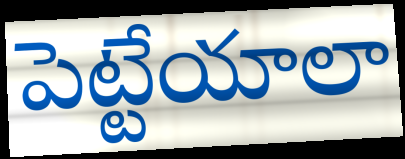
పెట్టేయాలా